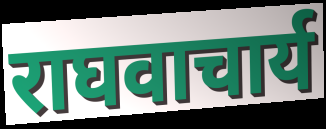
राघवाचार्य